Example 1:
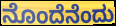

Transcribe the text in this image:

ನೊಂದೆನೆಂದು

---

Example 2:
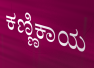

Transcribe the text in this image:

ಕಣ್ಣಿಕಾಯ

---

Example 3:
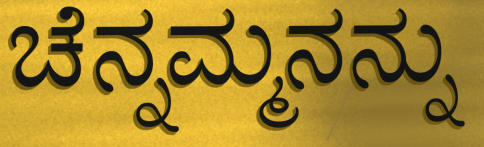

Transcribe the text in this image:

ಚೆನ್ನಮ್ಮನನ್ನು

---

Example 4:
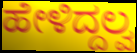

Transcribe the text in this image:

ಹೇಳಿದ್ದಲ್ವ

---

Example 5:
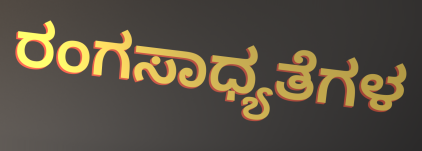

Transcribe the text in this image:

ರಂಗಸಾಧ್ಯತೆಗಳ